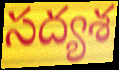
సద్యశ